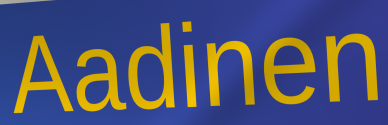
Aadinen